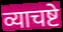
व्याचष्टे